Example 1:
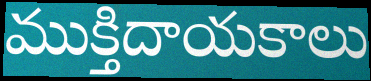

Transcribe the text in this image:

ముక్తిదాయకాలు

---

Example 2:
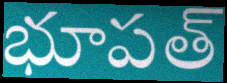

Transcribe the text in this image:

భూపత్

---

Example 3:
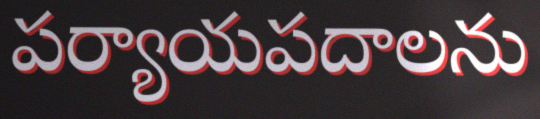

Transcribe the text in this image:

పర్యాయపదాలను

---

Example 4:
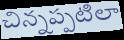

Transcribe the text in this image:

చిన్నప్పటిలా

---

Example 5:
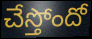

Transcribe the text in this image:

చేస్తోందో